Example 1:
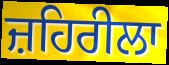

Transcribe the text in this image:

ਜ਼ਹਿਰੀਲਾ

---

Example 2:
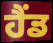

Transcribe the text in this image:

ਹੈਂਡ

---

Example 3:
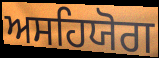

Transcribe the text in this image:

ਅਸਹਿਯੋਗ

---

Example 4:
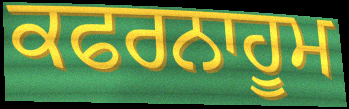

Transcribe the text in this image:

ਕਫਰਨਾਹੂਮ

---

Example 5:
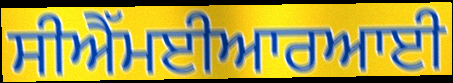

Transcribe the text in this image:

ਸੀਐੱਮਈਆਰਆਈ